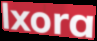
Ixora